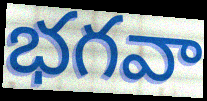
భగవా